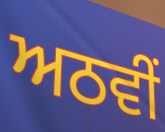
ਅਠਵੀਂ